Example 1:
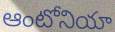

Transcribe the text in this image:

ఆంటోనియా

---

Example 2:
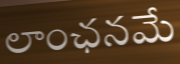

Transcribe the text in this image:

లాంఛనమే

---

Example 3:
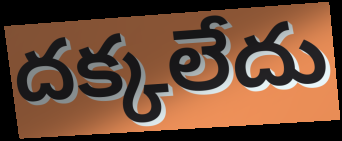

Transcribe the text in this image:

దక్కలేదు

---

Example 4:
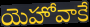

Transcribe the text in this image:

యెహోవాకే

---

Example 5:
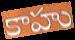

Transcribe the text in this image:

కాహు